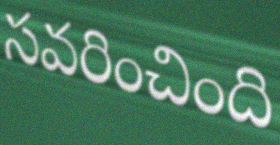
సవరించింది